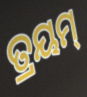
ତ୍ରୟମ୍